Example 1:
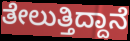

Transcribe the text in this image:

ತೇಲುತ್ತಿದ್ದಾನೆ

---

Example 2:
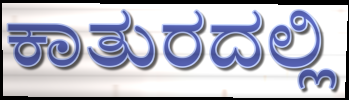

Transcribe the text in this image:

ಕಾತುರದಲ್ಲಿ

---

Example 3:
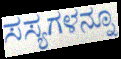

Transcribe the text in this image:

ಸಸ್ಯಗಳನ್ನೂ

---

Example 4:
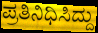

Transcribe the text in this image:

ಪ್ರತಿನಿಧಿಸಿದ್ದು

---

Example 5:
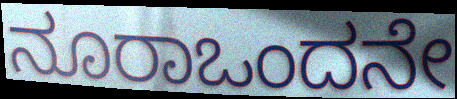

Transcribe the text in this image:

ನೂರಾಒಂದನೇ